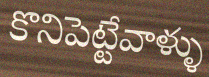
కొనిపెట్టేవాళ్ళు